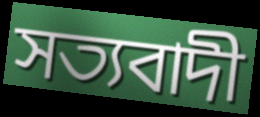
সত্যবাদী